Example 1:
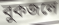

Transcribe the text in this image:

বুকজলে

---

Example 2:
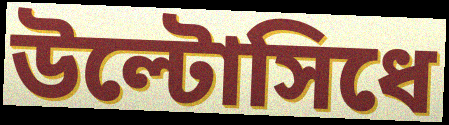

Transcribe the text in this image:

উল্টোসিধে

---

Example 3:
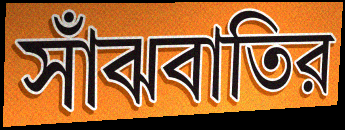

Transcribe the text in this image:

সাঁঝবাতির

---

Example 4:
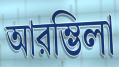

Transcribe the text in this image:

আরম্ভিলা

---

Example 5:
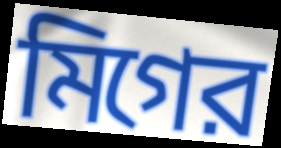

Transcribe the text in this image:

মিগের